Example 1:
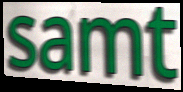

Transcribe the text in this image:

samt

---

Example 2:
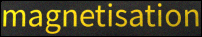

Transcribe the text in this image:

magnetisation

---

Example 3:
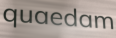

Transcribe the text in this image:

quaedam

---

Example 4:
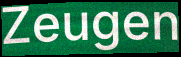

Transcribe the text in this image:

Zeugen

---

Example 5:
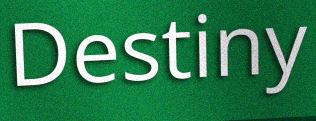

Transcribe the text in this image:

Destiny